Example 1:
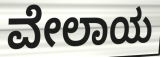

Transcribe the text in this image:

ವೇಲಾಯ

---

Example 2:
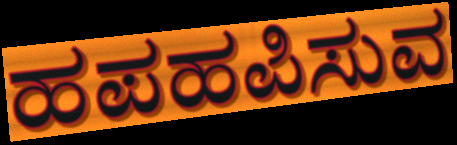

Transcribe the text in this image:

ಹಪಹಪಿಸುವ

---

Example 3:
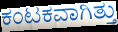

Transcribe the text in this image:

ಕಂಟಕವಾಗಿತ್ತು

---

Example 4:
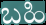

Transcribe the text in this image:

ಬಹಿ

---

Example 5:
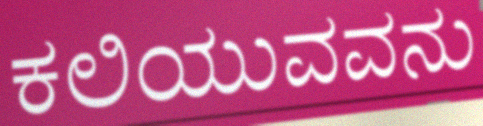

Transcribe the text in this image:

ಕಲಿಯುವವನು